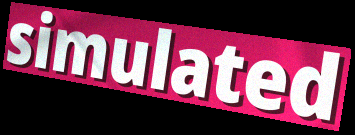
simulated